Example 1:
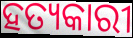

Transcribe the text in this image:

ହତ୍ୟକାରୀ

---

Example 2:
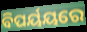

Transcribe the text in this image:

ବିପର୍ୟୟରେ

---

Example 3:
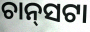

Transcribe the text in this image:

ଚାନ୍‌ସଟା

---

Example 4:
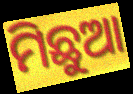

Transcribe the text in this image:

ମିଛୁଆ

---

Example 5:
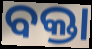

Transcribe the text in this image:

ବକ୍ତା